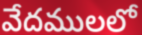
వేదములలో